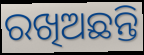
ରଖିଅଛନ୍ତି